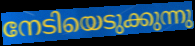
നേടിയെടുക്കുന്നു